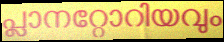
പ്ലാനറ്റോറിയവും